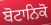
ਬੋਟਾਨਿਕੋ